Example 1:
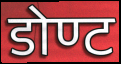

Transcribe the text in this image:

डोण्ट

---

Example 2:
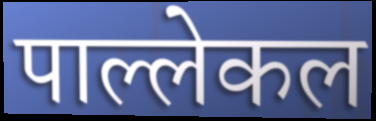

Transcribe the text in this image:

पाल्लेकल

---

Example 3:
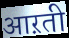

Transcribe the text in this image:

आऱती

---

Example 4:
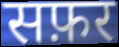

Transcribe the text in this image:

सफ़र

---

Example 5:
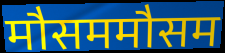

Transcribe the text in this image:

मौसममौसम